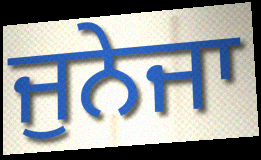
ਜੁਨੇਜਾ